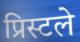
प्रिस्टले